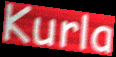
Kurla